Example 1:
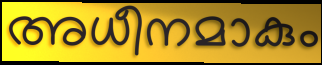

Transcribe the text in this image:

അധീനമാകും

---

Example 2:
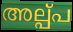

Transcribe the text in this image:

അല്പ്പ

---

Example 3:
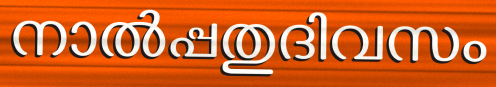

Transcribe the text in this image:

നാൽപ്പതുദിവസം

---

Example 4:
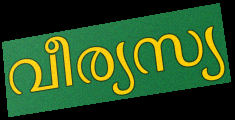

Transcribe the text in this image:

വീര്യസ്യ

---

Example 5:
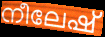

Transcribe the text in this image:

നീലേഷ്